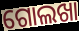
ଗୋଲଖା